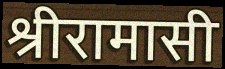
श्रीरामासी